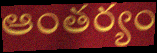
ఆంతర్యం